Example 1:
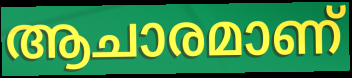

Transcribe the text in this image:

ആചാരമാണ്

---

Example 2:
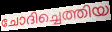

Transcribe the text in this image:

ചോദിച്ചെത്തിയ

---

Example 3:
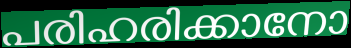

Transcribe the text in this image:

പരിഹരിക്കാനോ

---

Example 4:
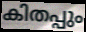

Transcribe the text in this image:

കിതപ്പും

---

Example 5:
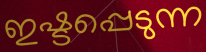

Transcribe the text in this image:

ഇഷ്ടപ്പെടുന്ന